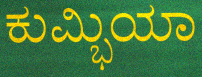
ಕುಮ್ಭಿಯಾ